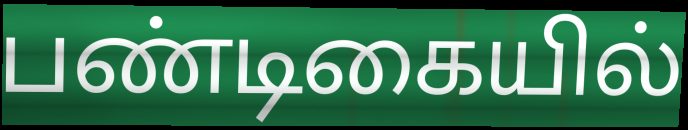
பண்டிகையில்